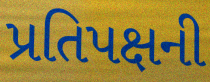
પ્રતિપક્ષની